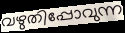
വഴുതിപ്പോവുന്ന